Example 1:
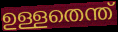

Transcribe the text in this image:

ഉള്ളതെന്ത്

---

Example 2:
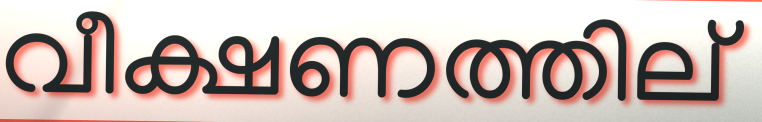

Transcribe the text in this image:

വീക്ഷണത്തില്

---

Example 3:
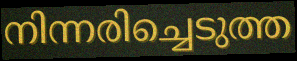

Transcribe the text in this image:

നിന്നരിച്ചെടുത്ത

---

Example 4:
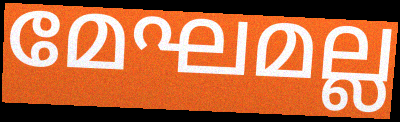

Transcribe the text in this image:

മേഘമല്ല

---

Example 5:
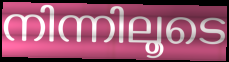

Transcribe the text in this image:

നിന്നിലൂടെ